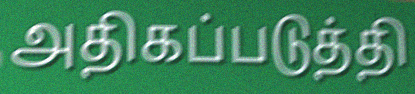
அதிகப்படுத்தி